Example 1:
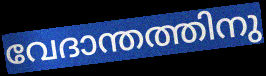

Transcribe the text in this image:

വേദാന്തത്തിനു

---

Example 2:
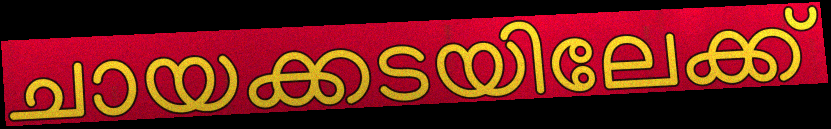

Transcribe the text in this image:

ചായക്കടയിലേക്ക്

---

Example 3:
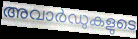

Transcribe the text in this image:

അവാർഡുകളുടെ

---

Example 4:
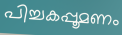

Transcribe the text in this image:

പിച്ചകപ്പൂമണം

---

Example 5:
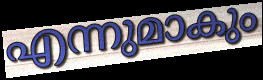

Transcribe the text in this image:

എന്നുമാകും